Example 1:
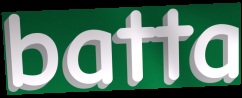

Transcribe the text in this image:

batta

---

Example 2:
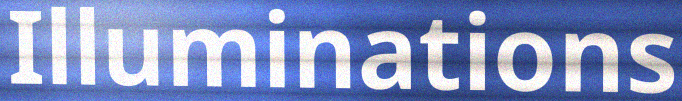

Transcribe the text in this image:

Illuminations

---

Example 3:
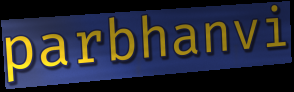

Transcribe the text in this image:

parbhanvi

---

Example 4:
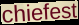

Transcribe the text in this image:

chiefest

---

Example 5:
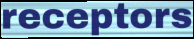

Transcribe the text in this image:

receptors